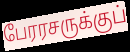
பேரரசருக்குப்